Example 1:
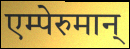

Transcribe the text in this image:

एम्पेरुमान्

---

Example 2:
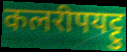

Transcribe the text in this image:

कलरीपयट्टु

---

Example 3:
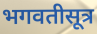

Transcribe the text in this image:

भगवतीसूत्र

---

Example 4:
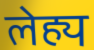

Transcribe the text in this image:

लेह्य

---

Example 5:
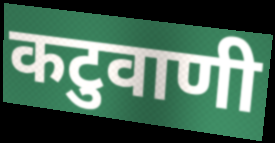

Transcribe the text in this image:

कटुवाणी